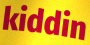
kiddin